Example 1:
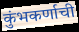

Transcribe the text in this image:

कुंभकर्णाची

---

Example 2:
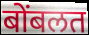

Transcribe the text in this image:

बोंबलत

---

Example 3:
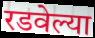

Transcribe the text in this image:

रडवेल्या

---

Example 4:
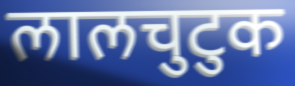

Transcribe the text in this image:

लालचुटुक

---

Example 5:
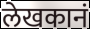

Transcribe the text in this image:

लेखकानं